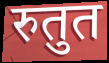
रुतुत